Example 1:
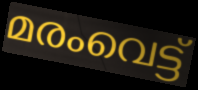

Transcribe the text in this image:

മരംവെട്ട്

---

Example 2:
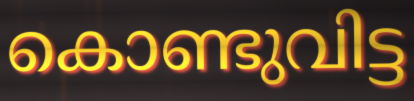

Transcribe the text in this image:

കൊണ്ടുവിട്ട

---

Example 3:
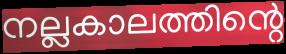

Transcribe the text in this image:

നല്ലകാലത്തിന്റെ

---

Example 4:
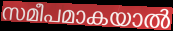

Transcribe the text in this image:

സമീപമാകയാൽ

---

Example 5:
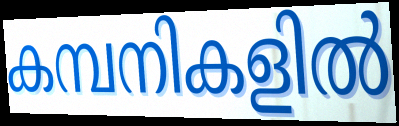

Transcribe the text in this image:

കമ്പനികളിൽ